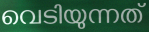
വെടിയുന്നത്